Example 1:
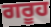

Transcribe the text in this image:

ਗਰੂਹ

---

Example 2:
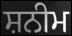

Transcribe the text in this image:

ਸ਼ਨੀਮ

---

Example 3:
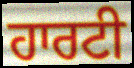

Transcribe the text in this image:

ਹਾਰਟੀ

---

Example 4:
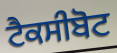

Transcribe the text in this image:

ਟੈਕਸੀਬੋਟ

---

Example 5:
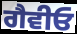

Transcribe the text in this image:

ਗੈਵੀਓ